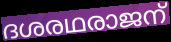
ദശരഥരാജന്